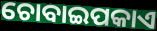
ଚୋବାଇପକାଏ